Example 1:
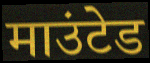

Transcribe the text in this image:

माउंटेड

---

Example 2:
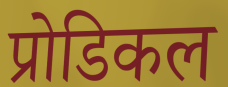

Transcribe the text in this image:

प्रोडिकल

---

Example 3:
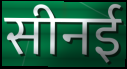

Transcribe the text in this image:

सीनई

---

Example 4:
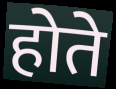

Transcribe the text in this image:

होते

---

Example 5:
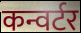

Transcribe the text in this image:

कन्वर्टर